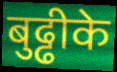
बुढ्ढीके